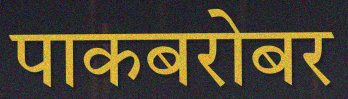
पाकबरोबर